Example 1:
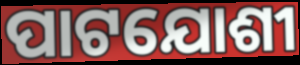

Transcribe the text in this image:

ପାଟଯୋଶୀ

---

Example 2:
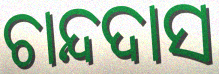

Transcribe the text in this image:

ଚାନ୍ଦଦାସ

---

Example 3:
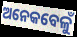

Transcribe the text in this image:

ଅନେକବେଳୁଁ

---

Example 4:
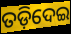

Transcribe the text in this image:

ତଡ଼ିଦେଇ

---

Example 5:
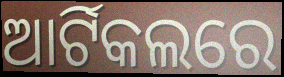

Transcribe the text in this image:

ଆର୍ଟିକଲରେ